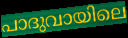
പാദുവായിലെ